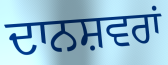
ਦਾਨਸ਼ਵਰਾਂ